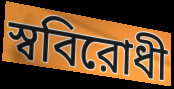
স্ববিরোধী